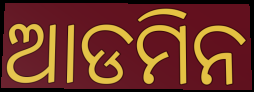
ଆଡମିନ